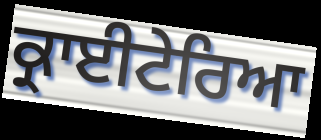
ਕ੍ਰਾਈਟੇਰਿਆ